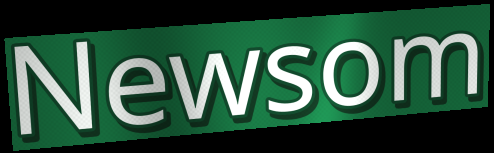
Newsom